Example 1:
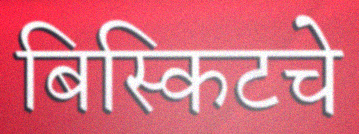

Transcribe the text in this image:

बिस्किटचे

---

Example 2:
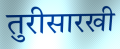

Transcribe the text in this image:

तुरीसारखी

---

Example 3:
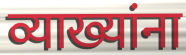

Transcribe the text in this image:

व्याख्यांना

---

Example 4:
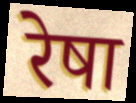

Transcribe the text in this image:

रेषा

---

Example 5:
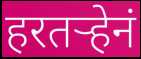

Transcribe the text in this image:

हरतर्‍हेनं